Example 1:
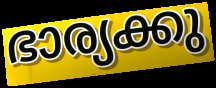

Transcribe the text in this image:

ഭാര്യക്കു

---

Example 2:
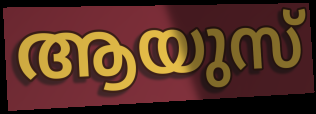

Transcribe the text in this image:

ആയുസ്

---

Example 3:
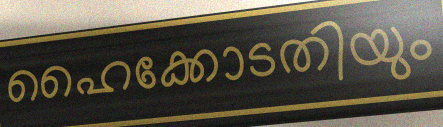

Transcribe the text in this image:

ഹൈക്കോടതിയും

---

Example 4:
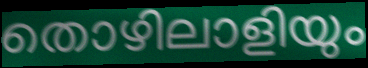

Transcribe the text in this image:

തൊഴിലാളിയും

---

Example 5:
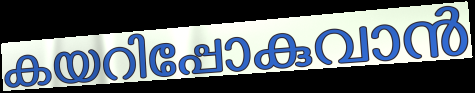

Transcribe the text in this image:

കയറിപ്പോകുവാൻ